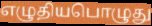
எழுதியபொழுது